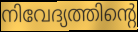
നിവേദ്യത്തിന്റെ